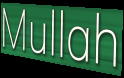
Mullah